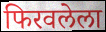
फिरवलेला